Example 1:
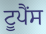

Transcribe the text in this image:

ਟੂਪੈਂਸ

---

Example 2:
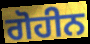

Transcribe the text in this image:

ਗੋਹੀਨ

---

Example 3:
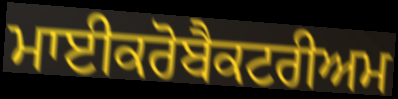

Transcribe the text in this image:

ਮਾਈਕਰੋਬੈਕਟਰੀਅਮ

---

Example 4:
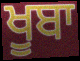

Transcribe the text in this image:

ਖੂਬਾ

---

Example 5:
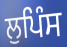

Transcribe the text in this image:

ਲੁਪਿੰਸ